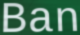
Ban